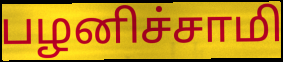
பழனிச்சாமி